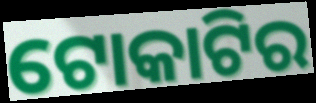
ଟୋକାଟିର